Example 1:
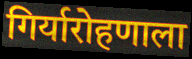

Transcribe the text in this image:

गिर्यारोहणाला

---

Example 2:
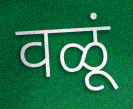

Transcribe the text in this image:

वळूं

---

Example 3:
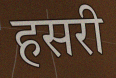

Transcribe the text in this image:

हसरी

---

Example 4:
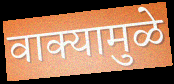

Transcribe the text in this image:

वाक्यामुळे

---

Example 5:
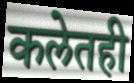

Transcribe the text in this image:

कलेतही